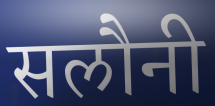
सलौनी